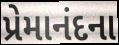
પ્રેમાનંદના